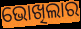
ଭୋଖିଲାର